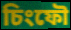
চিংফৌ